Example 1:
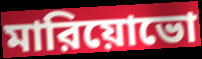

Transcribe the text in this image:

মারিয়োভো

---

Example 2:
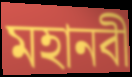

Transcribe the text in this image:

মহানবী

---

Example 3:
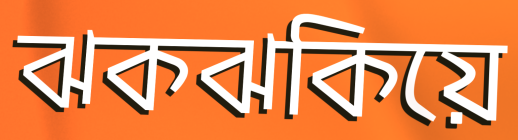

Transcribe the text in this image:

ঝকঝকিয়ে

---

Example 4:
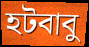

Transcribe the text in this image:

হটবাবু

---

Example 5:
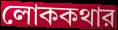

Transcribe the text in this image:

লোককথার